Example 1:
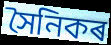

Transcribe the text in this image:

সৈনিকৰ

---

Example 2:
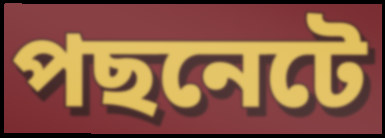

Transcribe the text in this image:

পছনেটে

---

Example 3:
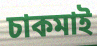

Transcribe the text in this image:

চাকমাই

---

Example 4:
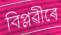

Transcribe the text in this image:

বিপ্লৱীৰে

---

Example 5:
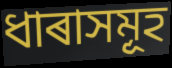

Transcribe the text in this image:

ধাৰাসমূহ